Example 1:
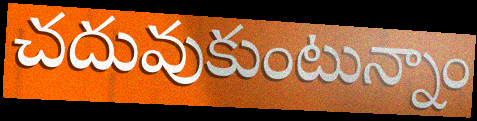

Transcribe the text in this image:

చదువుకుంటున్నాం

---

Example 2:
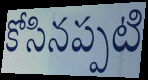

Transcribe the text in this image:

కోసినప్పటి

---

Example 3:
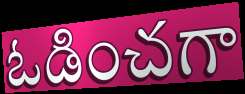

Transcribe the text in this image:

ఓడించగా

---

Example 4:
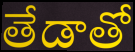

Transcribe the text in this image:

తేడాతో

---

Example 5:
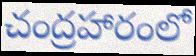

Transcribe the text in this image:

చంద్రహారంలో